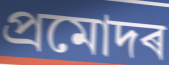
প্ৰমোদৰ